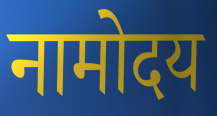
नामोदय